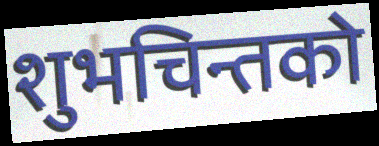
शुभचिन्तको